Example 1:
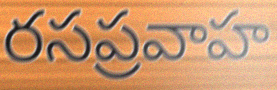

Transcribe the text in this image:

రసప్రవాహ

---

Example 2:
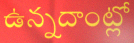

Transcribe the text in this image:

ఉన్నదాంట్లో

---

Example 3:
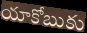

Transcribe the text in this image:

యాకోబుకు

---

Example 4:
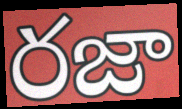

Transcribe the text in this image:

రజా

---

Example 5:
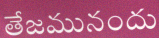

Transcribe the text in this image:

తేజమునందు